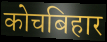
कोचबिहार